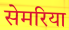
सेमरिया